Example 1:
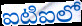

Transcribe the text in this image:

ఐటిఐలో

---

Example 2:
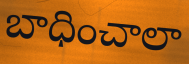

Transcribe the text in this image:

బాధించాలా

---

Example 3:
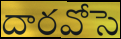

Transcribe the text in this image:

దారవోసె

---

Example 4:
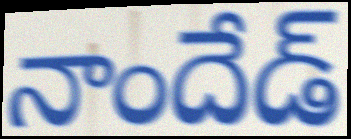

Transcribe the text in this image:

నాందేడ్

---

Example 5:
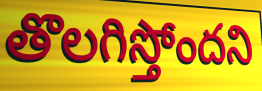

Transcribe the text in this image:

తొలగిస్తోందని